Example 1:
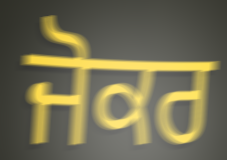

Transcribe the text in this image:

ਜੋਕਰ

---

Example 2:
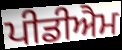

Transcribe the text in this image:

ਪੀਡੀਐਮ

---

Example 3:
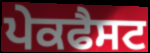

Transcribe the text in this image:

ਪੇਕਫੈਸਟ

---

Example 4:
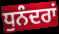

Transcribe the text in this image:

ਧੁਨੰਦਰਾਂ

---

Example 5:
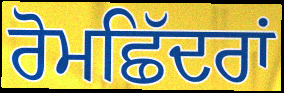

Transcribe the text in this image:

ਰੋਮਛਿੱਦਰਾਂ